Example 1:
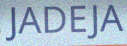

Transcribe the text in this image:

JADEJA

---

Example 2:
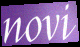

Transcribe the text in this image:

novi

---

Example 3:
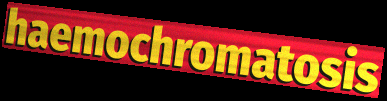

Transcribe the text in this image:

haemochromatosis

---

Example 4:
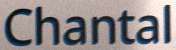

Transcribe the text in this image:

Chantal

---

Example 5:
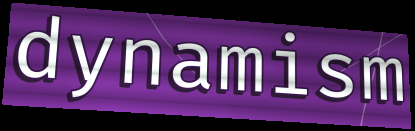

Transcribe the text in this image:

dynamism